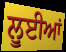
ਲੂਈਆਂ